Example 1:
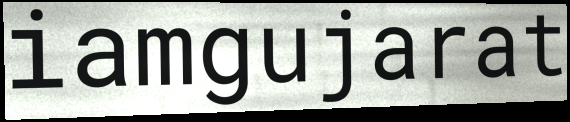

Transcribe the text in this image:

iamgujarat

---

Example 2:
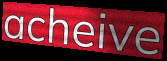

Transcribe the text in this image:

acheive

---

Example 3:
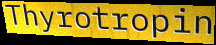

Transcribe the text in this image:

Thyrotropin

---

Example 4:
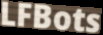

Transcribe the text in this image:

LFBots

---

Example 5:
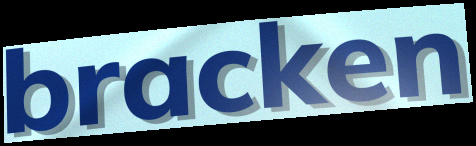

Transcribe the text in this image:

bracken